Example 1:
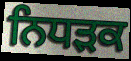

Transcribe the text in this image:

ਨਿਧਡ਼ਕ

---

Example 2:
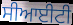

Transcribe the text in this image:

ਸੀਆਈਟੀ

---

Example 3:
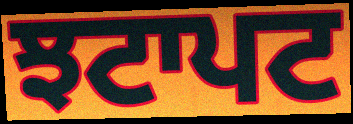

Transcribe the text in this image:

ਝਟਾਪਟ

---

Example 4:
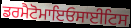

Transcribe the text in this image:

ਡਰਮੈਟੋਮਾਇਓਸਾਈਟਿਸ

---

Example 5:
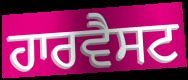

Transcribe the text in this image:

ਹਾਰਵੈਸਟ